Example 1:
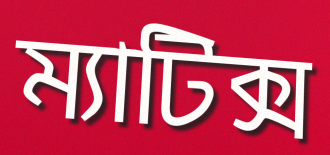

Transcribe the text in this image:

ম্যাটিক্স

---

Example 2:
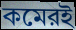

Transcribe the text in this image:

কমেরই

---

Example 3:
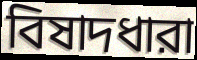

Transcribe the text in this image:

বিষাদধারা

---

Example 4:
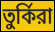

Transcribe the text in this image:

তুর্কিরা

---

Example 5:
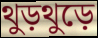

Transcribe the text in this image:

থুড়থুড়ে